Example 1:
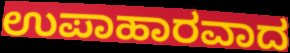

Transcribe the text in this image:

ಉಪಾಹಾರವಾದ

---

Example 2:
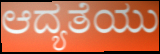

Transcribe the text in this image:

ಆದ್ಯತೆಯು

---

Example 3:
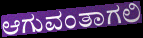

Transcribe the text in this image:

ಆಗುವಂತಾಗಲಿ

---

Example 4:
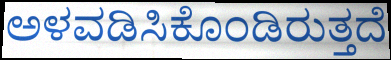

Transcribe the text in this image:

ಅಳವಡಿಸಿಕೊಂಡಿರುತ್ತದೆ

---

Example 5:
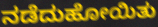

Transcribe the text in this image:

ನಡೆದುಹೋಯಿತು